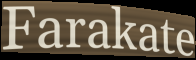
Farakate